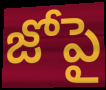
జోపై